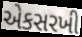
એકસરખી